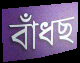
বাঁধছ